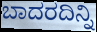
ಬಾದರದಿನ್ನಿ